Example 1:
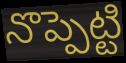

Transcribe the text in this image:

నొప్పెట్టి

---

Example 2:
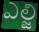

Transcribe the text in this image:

ఎల్జి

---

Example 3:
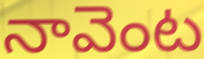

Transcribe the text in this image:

నావెంట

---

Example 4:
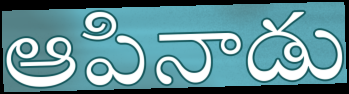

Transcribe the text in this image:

ఆపినాడు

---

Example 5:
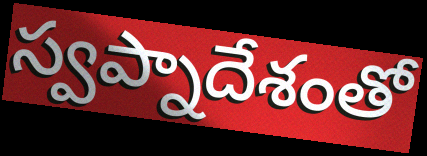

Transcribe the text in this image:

స్వప్నాదేశంతో